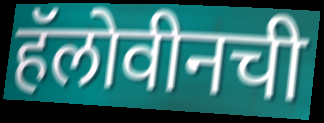
हॅलोवीनची